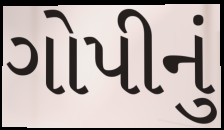
ગોપીનું